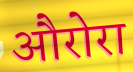
औरोरा